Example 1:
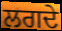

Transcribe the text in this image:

ਲਗਦੇ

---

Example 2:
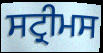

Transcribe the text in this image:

ਸਟ੍ਰੀਮਸ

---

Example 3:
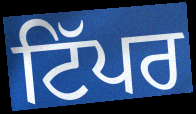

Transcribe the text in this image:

ਟਿੱਪਰ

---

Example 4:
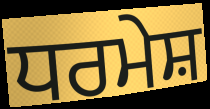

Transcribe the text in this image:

ਧਰਮੇਸ਼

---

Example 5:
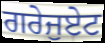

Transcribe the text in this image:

ਗਰੇਜੁਏਟ